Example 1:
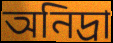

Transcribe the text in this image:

অনিদ্রা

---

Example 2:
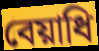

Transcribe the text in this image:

বেয়াধি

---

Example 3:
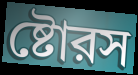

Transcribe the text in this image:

ষ্টোরস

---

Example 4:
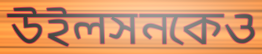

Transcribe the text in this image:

উইলসনকেও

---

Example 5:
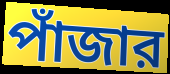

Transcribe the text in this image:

পাঁজার